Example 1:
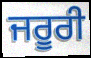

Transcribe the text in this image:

ਜਰੂਰੀ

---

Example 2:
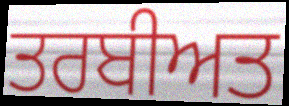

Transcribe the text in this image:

ਤਰਬੀਅਤ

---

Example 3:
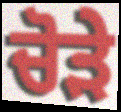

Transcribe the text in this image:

ਚੋੜੇ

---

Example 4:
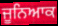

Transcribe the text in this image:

ਜੂਨਿਆਕ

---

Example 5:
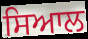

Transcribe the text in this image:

ਸਿਆਲ